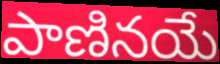
పాణినయే